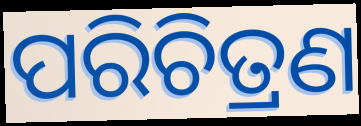
ପରିଚିତ୍ରଣ